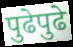
पुढेपुढे